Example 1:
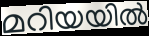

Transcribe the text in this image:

മറിയയിൽ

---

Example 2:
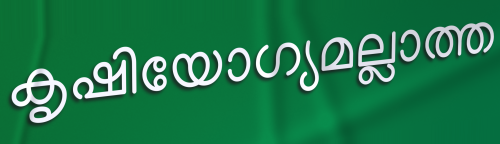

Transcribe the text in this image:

കൃഷിയോഗ്യമല്ലാത്ത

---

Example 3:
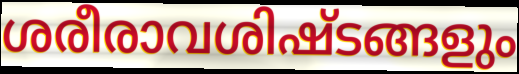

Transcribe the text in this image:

ശരീരാവശിഷ്ടങ്ങളും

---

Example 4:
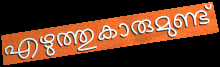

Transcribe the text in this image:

എഴുത്തുകാരുമുണ്ട്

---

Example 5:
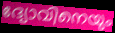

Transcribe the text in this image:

ദ്യോവിനെയും